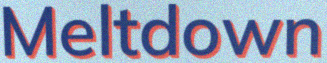
Meltdown